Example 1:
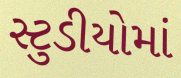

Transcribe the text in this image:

સ્ટુડીયોમાં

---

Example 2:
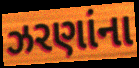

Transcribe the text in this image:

ઝરણાંના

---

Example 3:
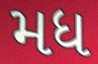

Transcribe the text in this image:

મધ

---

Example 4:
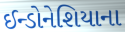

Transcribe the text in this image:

ઈન્ડોનેશિયાના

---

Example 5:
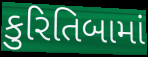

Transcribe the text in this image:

કુરિતિબામાં